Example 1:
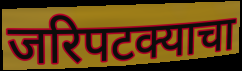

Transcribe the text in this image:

जरिपटक्याचा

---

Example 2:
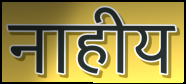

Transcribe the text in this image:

नाहीय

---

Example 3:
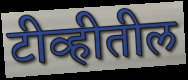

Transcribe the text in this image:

टीव्हीतील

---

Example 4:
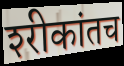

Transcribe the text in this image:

श्रीकांतच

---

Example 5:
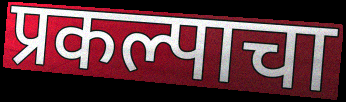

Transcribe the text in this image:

प्रकल्पाचा